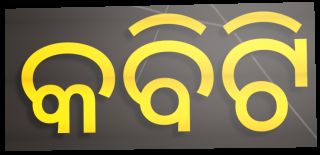
କବିଟି